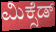
ಮಿಕ್ಸೆಡ್